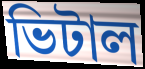
ভিটাল